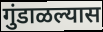
गुंडाळल्यास